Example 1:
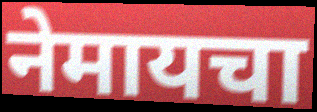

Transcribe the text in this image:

नेमायचा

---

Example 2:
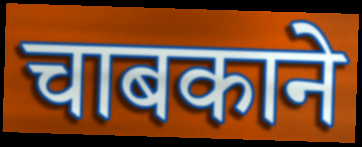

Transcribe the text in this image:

चाबकाने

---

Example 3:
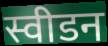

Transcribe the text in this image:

स्वीडन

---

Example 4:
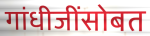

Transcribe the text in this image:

गांधीजींसोबत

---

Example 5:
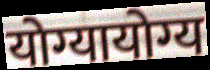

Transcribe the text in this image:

योग्यायोग्य